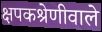
क्षपकश्रेणीवाले